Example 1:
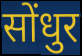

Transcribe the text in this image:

सोंधुर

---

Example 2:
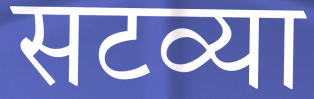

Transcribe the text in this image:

सटव्या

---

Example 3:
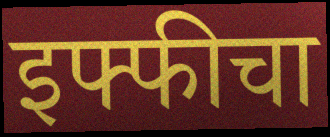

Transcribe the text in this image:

इफ्फीचा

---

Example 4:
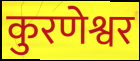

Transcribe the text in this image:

कुरणेश्वर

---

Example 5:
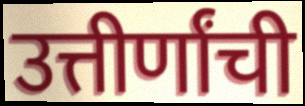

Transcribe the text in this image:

उत्तीर्णांची